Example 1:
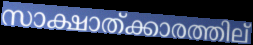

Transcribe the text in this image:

സാക്ഷാത്ക്കാരത്തില്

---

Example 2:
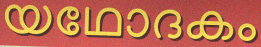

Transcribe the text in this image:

യഥോദകം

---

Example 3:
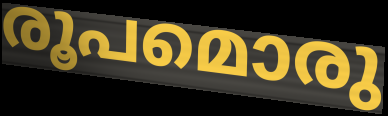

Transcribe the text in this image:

രൂപമൊരു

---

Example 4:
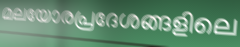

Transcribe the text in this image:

മലയോരപ്രദേശങ്ങളിലെ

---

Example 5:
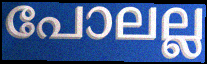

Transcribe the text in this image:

പോലല്ല